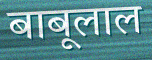
बाबूलाल